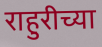
राहुरीच्या